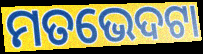
ମତଭେଦଟା